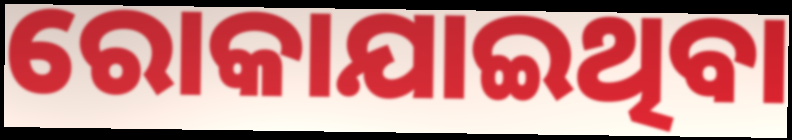
ରୋକାଯାଇଥିବା